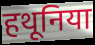
हथूनिया